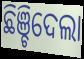
ଛିଞ୍ଚିଦେଲା